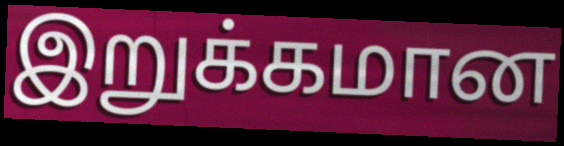
இறுக்கமான